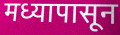
मध्यापासून